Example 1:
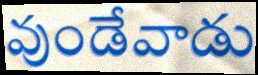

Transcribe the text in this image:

వుండేవాడు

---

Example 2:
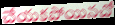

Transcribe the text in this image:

చేయకపోయినచో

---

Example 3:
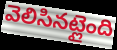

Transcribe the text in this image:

వెలిసినట్లైంది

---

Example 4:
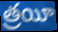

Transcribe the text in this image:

త్రయీ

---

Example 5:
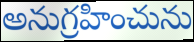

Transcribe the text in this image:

అనుగ్రహించును